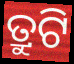
ତ୍ରୁଟି